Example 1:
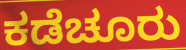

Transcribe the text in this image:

ಕಡೆಚೂರು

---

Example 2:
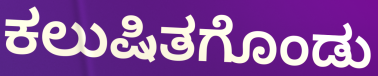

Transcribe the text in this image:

ಕಲುಷಿತಗೊಂಡು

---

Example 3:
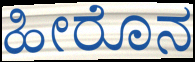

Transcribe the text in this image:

ಹೀರೊನ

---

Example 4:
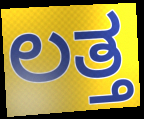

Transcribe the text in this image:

ಲತ್ತ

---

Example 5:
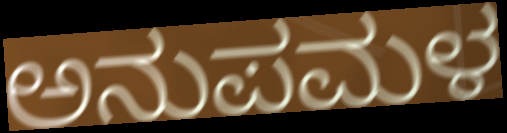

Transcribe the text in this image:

ಅನುಪಮಳ